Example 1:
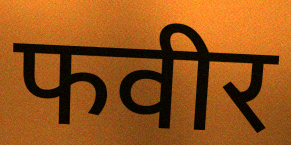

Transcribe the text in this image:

फवीर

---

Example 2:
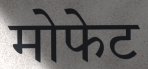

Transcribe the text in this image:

मोफेट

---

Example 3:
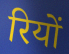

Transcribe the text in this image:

रियों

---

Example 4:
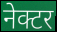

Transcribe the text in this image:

नेक्टर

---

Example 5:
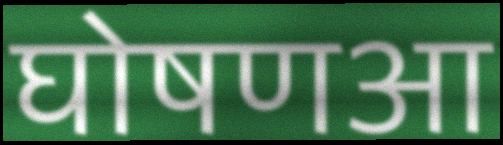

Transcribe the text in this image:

घोषणआ